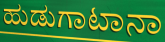
ಹುಡುಗಾಟಾನಾ